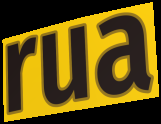
rua